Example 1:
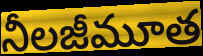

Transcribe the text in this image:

నీలజీమూత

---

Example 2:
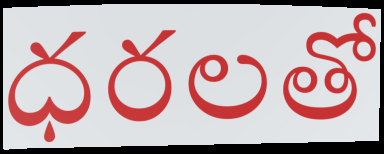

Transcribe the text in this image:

ధరలతో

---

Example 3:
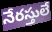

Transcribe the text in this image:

నేరస్తులే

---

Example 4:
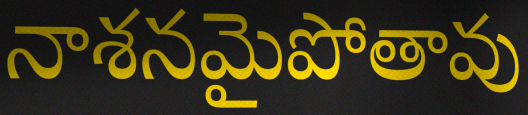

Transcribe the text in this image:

నాశనమైపోతావు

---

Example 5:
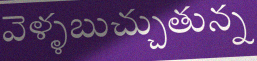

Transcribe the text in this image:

వెళ్ళబుచ్చుతున్న